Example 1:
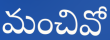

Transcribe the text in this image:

మంచివో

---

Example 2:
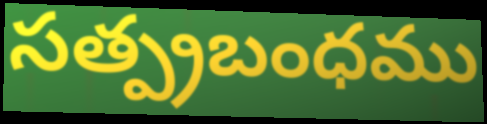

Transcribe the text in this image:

సత్ప్రబంధము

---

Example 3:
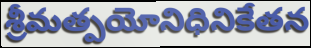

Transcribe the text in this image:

శ్రీమత్పయోనిధినికేతన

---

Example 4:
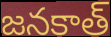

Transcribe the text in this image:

జనకాత్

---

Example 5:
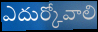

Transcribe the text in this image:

ఎదుర్కోవాలి